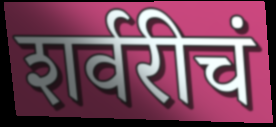
शर्वरीचं